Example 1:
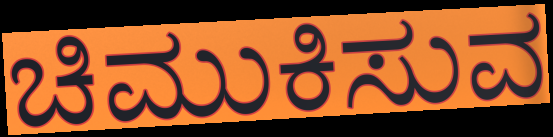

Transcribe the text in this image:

ಚಿಮುಕಿಸುವ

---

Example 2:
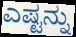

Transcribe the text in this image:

ಎಷ್ಟನ್ನು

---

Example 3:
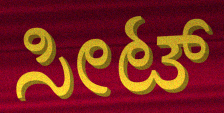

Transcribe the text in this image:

ಸೀಟ್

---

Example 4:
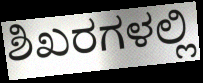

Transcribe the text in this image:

ಶಿಖರಗಳಲ್ಲಿ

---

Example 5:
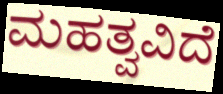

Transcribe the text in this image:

ಮಹತ್ವವಿದೆ